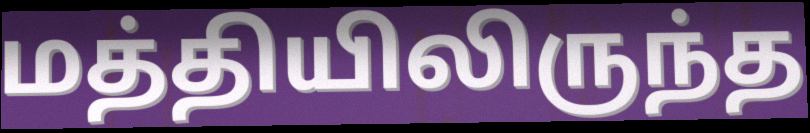
மத்தியிலிருந்த